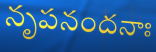
నృపనందనాః